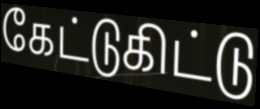
கேட்டுகிட்டு